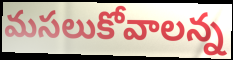
మసలుకోవాలన్న